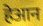
हेआन